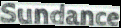
Sundance